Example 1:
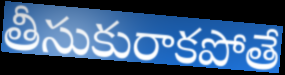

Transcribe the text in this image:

తీసుకురాకపోతే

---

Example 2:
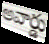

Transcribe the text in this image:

అవార్డు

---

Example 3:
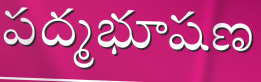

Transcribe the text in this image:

పద్మభూషణ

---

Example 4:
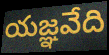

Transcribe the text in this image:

యజ్ఞవేది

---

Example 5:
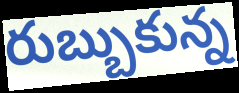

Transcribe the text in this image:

రుబ్బుకున్న